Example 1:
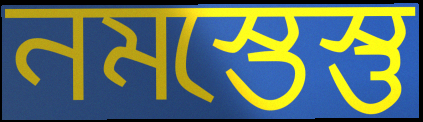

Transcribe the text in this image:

নমস্তেস্তু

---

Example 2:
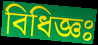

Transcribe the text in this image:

বিধিজ্ঞঃ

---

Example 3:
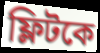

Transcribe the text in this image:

ফ্লিটকে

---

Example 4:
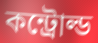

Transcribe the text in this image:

কন্ট্রোল্ড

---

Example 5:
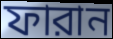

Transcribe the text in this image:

ফারান